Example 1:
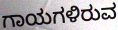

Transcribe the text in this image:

ಗಾಯಗಳಿರುವ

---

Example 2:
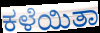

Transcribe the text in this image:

ಕಳೆಯಿತಾ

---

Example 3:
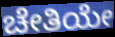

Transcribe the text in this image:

ಚೇತಿಯೇ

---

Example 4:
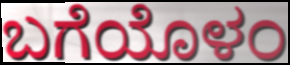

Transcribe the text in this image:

ಬಗೆಯೊಳಂ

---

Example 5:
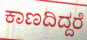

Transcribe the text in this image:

ಕಾಣದಿದ್ದರೆ